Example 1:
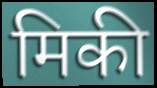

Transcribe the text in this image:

मिकी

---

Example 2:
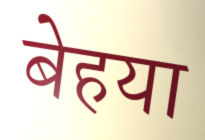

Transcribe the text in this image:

बेहया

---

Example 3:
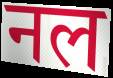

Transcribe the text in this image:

नल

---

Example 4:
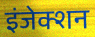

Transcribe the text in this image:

इंजेक्शन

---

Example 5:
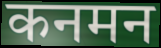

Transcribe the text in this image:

कनमन